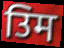
उिम